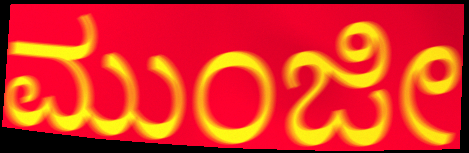
ಮುಂಜೀ